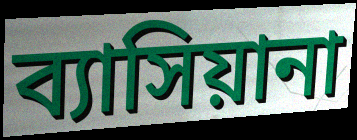
ব্যাসিয়ানা